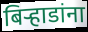
बिऱ्हाडांना